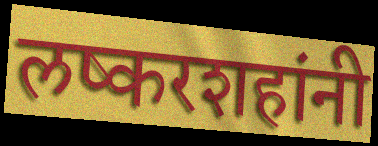
लष्करशहांनी